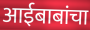
आईबाबांचा